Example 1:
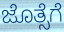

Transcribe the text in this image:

ಜೊತ್ಸೆಗೆ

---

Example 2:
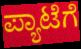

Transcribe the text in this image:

ಪ್ಯಾಟೆಗೆ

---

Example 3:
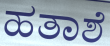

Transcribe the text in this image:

ಹತಾಶೆ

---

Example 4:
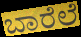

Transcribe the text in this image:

ಬಾರೆಲೆ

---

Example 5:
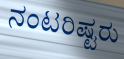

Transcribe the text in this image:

ನಂಟರಿಷ್ಟರು